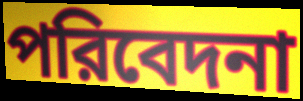
পরিবেদনা